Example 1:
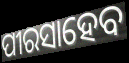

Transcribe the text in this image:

ପୀରସାହେବ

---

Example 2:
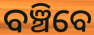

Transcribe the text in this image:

ବଞ୍ଚିବେ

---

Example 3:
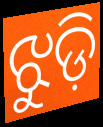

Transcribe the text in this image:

ଝୁଡ଼ି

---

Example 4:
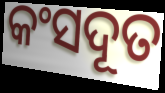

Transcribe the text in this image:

କଂସଦୂତ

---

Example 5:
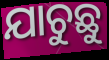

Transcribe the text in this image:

ଯାଚୁଛୁ